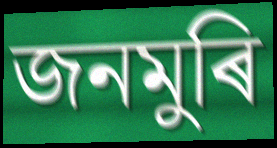
জনমুৰি